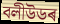
বলীউডৰ